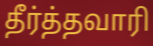
தீர்த்தவாரி